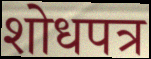
शोधपत्र